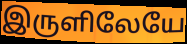
இருளிலேயே